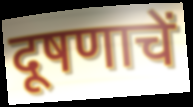
दूषणाचें